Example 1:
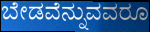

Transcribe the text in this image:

ಬೇಡವೆನ್ನುವವರೂ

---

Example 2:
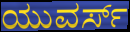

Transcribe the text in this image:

ಯುವರ್ಸ್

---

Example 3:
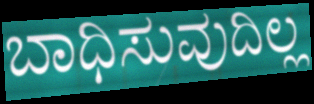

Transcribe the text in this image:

ಬಾಧಿಸುವುದಿಲ್ಲ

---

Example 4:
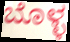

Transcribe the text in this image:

ಬೊಳ್ಳ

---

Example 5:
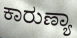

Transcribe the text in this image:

ಕಾರುಣ್ಯಾ